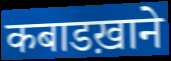
कबाडख़ाने